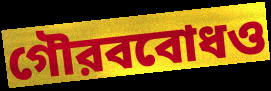
গৌরববোধও